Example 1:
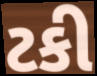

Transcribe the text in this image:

ટકી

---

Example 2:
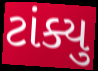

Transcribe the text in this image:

ટાંક્યુ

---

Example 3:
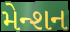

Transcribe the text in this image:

મેન્શન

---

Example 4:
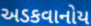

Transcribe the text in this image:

અડકવાનોય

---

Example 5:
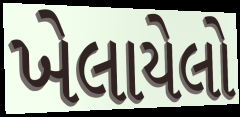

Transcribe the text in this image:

ખેલાયેલો